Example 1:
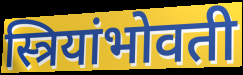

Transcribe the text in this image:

स्त्रियांभोवती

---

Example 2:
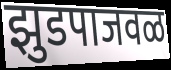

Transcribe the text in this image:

झुडपाजवळ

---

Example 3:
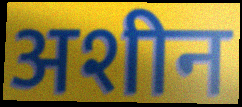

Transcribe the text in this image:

अशीन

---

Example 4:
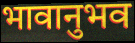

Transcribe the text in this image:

भावानुभव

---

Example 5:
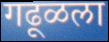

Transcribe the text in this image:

गढूळला